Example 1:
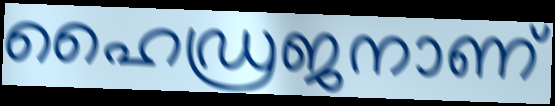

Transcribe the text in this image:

ഹൈഡ്രജനാണ്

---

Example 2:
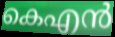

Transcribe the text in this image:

കെഎൻ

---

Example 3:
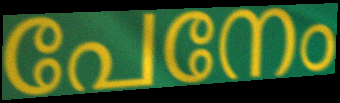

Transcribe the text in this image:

പേനേം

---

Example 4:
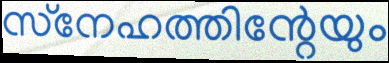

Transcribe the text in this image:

സ്‌നേഹത്തിന്റേയും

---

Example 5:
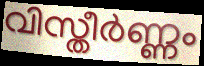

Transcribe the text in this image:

വിസ്തീർണ്ണം